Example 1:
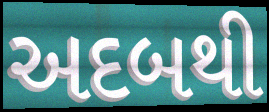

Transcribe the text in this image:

અદબથી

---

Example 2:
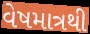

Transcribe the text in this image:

વેષમાત્રથી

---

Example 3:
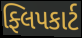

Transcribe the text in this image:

ફ્લિપકાર્ટ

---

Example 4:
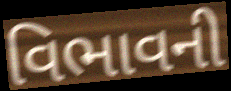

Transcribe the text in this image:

વિભાવની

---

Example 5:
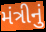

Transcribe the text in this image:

મંત્રીનું